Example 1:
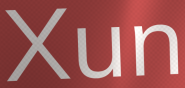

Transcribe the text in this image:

Xun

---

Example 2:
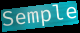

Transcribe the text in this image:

Semple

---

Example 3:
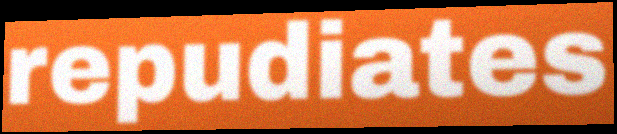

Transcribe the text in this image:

repudiates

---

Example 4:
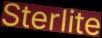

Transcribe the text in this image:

Sterlite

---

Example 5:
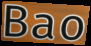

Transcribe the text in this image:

Bao